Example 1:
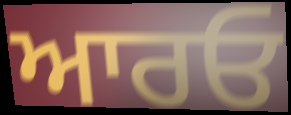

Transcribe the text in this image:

ਆਰਓ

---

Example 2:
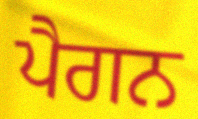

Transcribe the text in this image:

ਪੈਗਨ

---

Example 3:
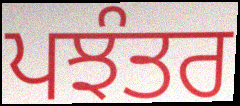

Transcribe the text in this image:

ਪਝੰਤਰ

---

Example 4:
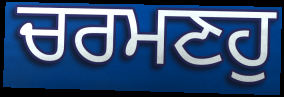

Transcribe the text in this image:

ਚਰਮਣਹੁ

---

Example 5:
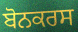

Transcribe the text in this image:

ਬੋਨਕਰਸ